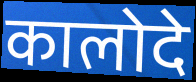
कालोदे